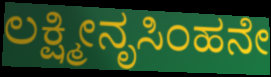
ಲಕ್ಷ್ಮೀನೃಸಿಂಹನೇ